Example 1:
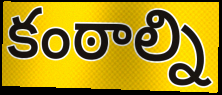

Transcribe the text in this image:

కంఠాల్ని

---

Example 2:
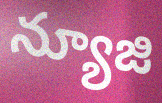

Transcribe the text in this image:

న్యూజి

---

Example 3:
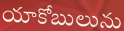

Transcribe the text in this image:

యాకోబులును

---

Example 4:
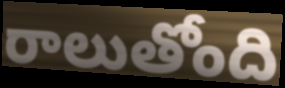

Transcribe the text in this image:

రాలుతోంది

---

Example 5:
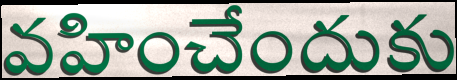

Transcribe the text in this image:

వహించేందుకు